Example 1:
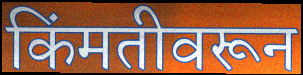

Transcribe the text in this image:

किंमतीवरून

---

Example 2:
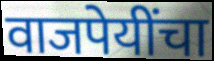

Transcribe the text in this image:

वाजपेयींचा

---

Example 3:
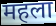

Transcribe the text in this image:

महला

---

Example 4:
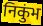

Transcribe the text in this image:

निकुंभ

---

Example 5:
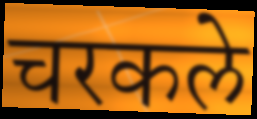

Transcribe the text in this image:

चरकले